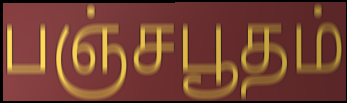
பஞ்சபூதம்